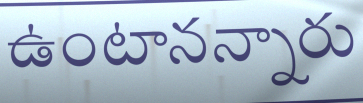
ఉంటానన్నారు